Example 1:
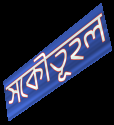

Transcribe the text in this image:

সকৌতূহল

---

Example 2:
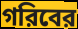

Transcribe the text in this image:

গরিবের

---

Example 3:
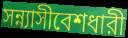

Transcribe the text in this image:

সন্ন্যাসীবেশধারী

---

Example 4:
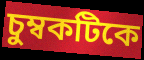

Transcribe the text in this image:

চুম্বকটিকে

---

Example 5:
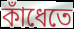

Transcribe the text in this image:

কাঁধেতে